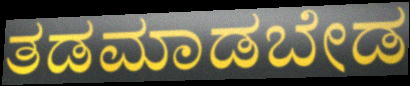
ತಡಮಾಡಬೇಡ